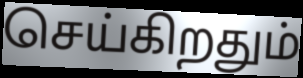
செய்கிறதும்